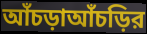
আঁচড়াআঁচড়ির